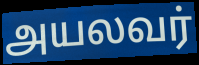
அயலவர்